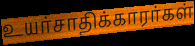
உயர்சாதிக்காரர்கள்